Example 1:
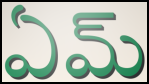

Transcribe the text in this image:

ఏమ్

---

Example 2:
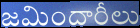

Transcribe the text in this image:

జమిందారీలు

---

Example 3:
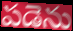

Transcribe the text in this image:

పడెను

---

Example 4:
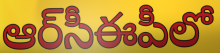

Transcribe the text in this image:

ఆర్‌సీఈపీలో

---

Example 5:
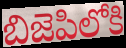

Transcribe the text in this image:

బిజెపిలోకి